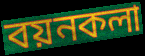
বয়নকলা